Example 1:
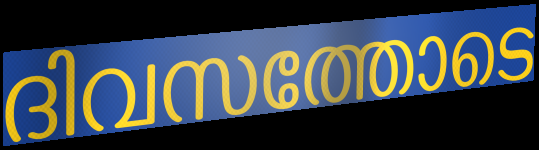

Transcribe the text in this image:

ദിവസത്തോടെ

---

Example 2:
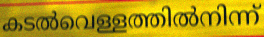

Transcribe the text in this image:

കടൽവെള്ളത്തിൽനിന്ന്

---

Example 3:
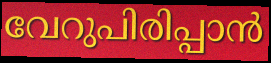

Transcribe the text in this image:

വേറുപിരിപ്പാൻ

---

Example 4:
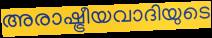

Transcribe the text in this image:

അരാഷ്ട്രീയവാദിയുടെ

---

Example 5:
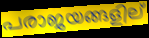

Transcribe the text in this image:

പരാജയങ്ങളില്